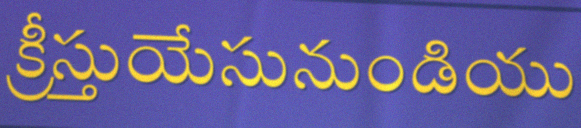
క్రీస్తుయేసునుండియు